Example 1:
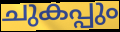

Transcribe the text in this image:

ചുകപ്പും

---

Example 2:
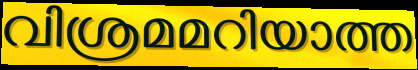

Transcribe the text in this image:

വിശ്രമമറിയാത്ത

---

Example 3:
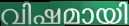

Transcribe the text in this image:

വിഷമായി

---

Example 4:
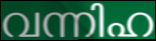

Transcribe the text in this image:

വന്നിഹ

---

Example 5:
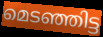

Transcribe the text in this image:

മെടഞ്ഞിട്ട